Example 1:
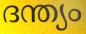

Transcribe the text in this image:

ദന്ത്യം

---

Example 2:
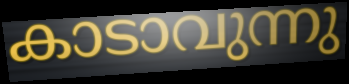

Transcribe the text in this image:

കാടാവുന്നു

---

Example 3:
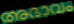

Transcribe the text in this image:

അഭാവം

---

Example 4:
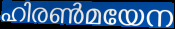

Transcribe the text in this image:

ഹിരൺമയേന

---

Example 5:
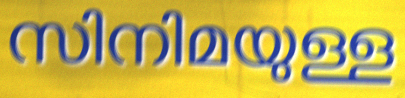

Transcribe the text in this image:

സിനിമയുള്ള